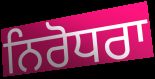
ਨਿਰੋਧਰਾ